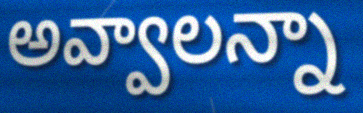
అవ్వాలన్నా